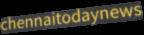
chennaitodaynews